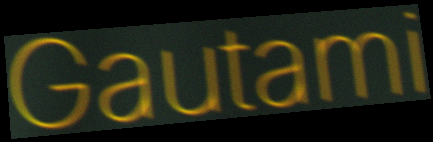
Gautami